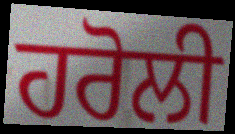
ਹਰੋਲੀ